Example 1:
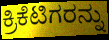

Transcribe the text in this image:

ಕ್ರಿಕೆಟಿಗರನ್ನು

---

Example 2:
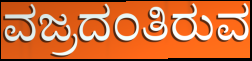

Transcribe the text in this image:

ವಜ್ರದಂತಿರುವ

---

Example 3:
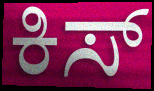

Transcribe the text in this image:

ಕಿಸ್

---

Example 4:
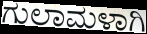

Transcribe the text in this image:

ಗುಲಾಮಳಾಗಿ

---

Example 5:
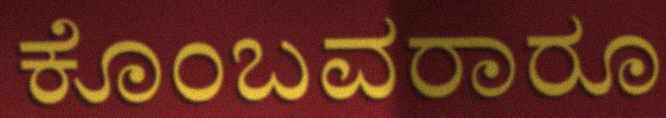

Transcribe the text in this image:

ಕೊಂಬವರಾರೂ